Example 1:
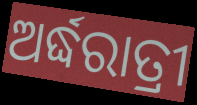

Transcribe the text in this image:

ଅର୍ଦ୍ଧରାତ୍ରୀ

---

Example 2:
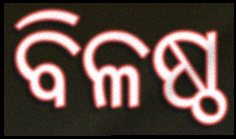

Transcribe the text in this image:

ବିଳଷ୍ଠ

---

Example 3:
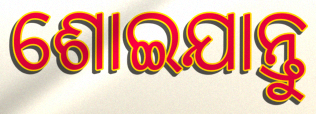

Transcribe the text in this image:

ଶୋଇଯାନ୍ତୁ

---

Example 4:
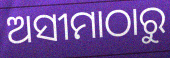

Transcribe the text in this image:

ଅସୀମାଠାରୁ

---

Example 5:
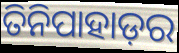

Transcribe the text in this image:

ତିନିପାହାଡ଼ର